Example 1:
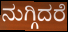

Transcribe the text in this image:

ನುಗ್ಗಿದರೆ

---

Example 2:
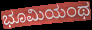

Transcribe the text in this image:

ಭೂಮಿಯಂಥ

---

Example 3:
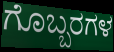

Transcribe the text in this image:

ಗೊಬ್ಬರಗಳ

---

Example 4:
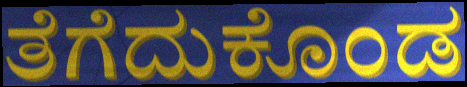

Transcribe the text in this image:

ತೆಗೆದುಕೊಂಡ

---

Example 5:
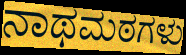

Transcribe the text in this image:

ನಾಥಮಠಗಳು